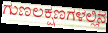
ಗುಣಲಕ್ಷಣಗಳಲ್ಲಿನ